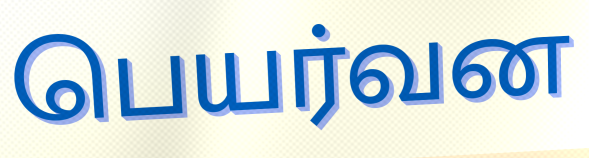
பெயர்வன